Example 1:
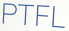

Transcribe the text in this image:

PTFL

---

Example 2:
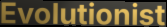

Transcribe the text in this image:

Evolutionist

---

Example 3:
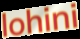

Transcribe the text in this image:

lohini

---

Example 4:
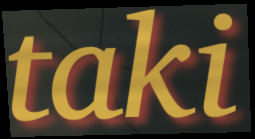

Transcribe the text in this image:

taki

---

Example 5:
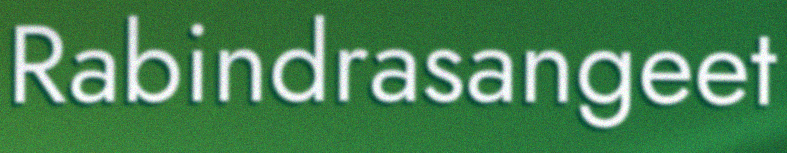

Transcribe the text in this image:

Rabindrasangeet